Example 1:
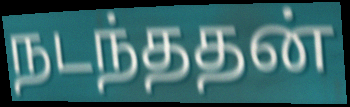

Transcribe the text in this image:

நடந்ததன்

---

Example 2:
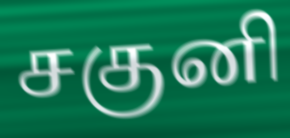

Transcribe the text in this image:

சகுனி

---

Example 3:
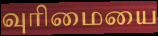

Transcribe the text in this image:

வுரிமையை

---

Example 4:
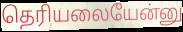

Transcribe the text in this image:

தெரியலையேன்னு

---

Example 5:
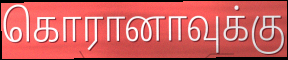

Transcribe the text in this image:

கொரானாவுக்கு